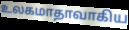
உலகமாதாவாகிய